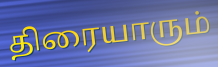
திரையாரும்